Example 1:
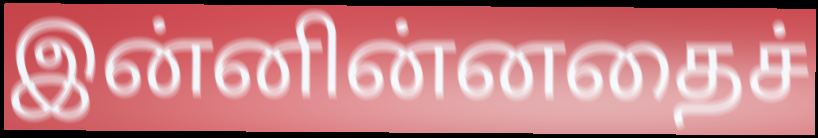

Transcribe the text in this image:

இன்னின்னதைச்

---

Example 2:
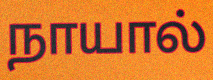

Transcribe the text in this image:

நாயால்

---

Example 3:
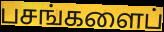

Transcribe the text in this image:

பசங்களைப்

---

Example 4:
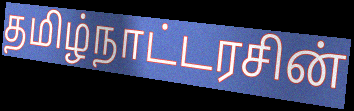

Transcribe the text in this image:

தமிழ்நாட்டரசின்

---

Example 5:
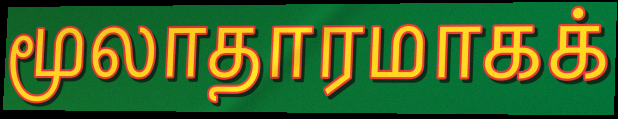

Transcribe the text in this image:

மூலாதாரமாகக்